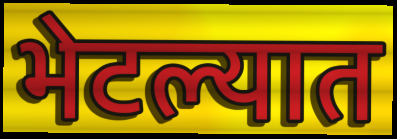
भेटल्यात